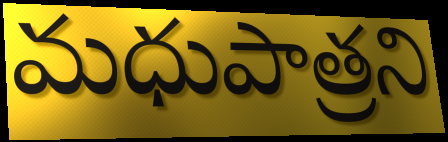
మధుపాత్రని